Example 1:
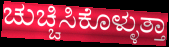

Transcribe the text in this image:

ಚುಚ್ಚಿಸಿಕೊಳ್ಳುತ್ತಾ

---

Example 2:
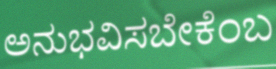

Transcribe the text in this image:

ಅನುಭವಿಸಬೇಕೆಂಬ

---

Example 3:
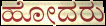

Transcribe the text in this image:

ಹೋದರು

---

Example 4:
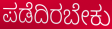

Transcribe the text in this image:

ಪಡೆದಿರಬೇಕು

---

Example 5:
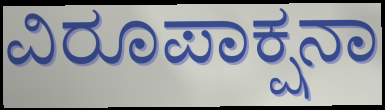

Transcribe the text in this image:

ವಿರೂಪಾಕ್ಷನಾ